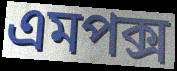
এমপক্স